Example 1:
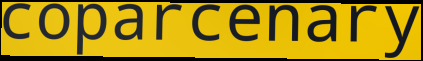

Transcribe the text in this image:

coparcenary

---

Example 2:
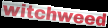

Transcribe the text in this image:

witchweed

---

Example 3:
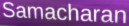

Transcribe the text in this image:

Samacharan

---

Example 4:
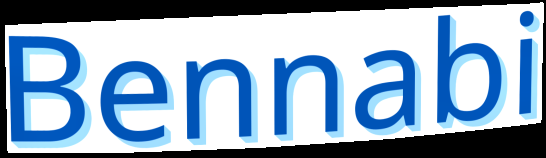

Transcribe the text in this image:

Bennabi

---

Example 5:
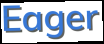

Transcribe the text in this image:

Eager